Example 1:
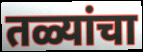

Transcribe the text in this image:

तळ्यांचा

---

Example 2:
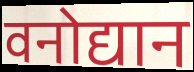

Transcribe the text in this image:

वनोद्यान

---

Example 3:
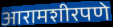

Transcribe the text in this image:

आरामशीरपणे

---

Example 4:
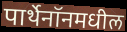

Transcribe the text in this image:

पार्थेनॉनमधील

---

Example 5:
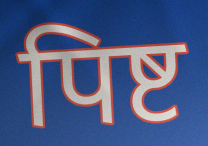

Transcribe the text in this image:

पिष्ट